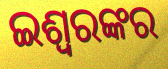
ଇଶ୍ୱରଙ୍କର